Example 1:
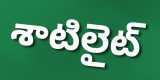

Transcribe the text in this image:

శాటిలైట్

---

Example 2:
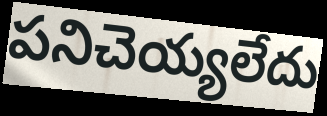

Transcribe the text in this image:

పనిచెయ్యలేదు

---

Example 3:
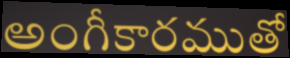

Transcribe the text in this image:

అంగీకారముతో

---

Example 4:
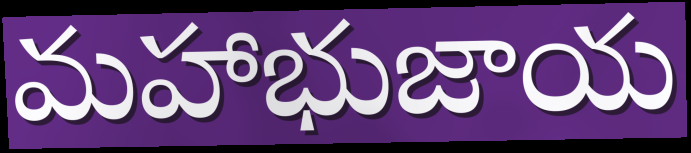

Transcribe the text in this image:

మహాభుజాయ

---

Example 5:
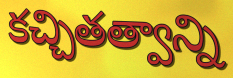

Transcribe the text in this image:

కచ్చితత్వాన్ని